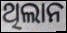
ଥିଲାନ